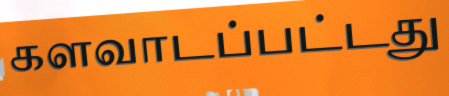
களவாடப்பட்டது